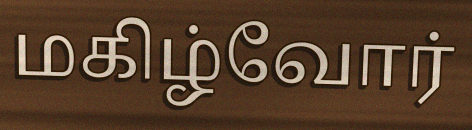
மகிழ்வோர்